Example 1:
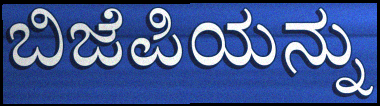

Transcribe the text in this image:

ಬಿಜೆಪಿಯನ್ನು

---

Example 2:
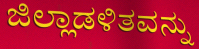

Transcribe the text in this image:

ಜಿಲ್ಲಾಡಳಿತವನ್ನು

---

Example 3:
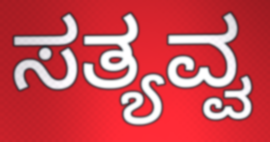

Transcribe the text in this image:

ಸತ್ಯವ್ವ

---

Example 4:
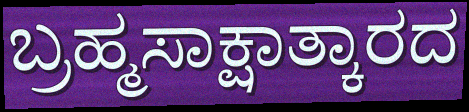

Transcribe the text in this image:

ಬ್ರಹ್ಮಸಾಕ್ಷಾತ್ಕಾರದ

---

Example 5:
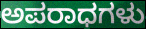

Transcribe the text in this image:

ಅಪರಾಧಗಳು